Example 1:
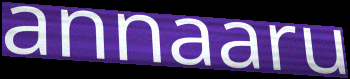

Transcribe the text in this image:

annaaru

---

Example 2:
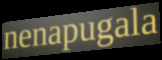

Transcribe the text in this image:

nenapugala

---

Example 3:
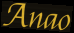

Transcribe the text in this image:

Anao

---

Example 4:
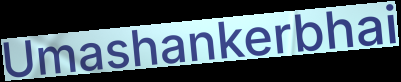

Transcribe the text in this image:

Umashankerbhai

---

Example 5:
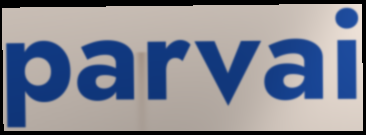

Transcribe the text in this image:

parvai